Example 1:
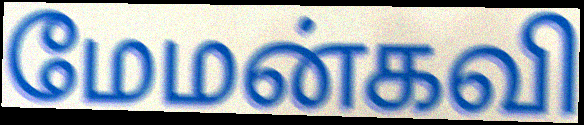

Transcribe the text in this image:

மேமன்கவி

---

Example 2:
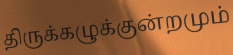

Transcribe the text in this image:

திருக்கழுக்குன்றமும்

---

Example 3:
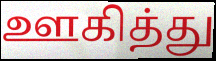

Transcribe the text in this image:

ஊகித்து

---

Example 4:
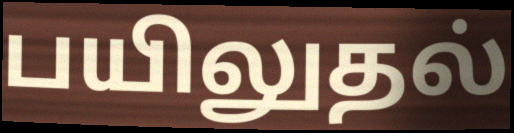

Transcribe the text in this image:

பயிலுதல்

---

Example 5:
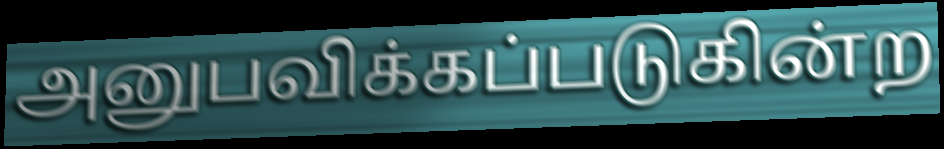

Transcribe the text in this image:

அனுபவிக்கப்படுகின்ற